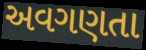
અવગણતા